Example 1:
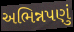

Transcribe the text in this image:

અભિન્નપણું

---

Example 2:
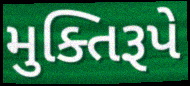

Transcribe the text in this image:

મુક્તિરૂપે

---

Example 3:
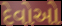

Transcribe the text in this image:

દેવોઓ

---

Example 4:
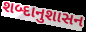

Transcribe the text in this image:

શબ્દાનુશાસન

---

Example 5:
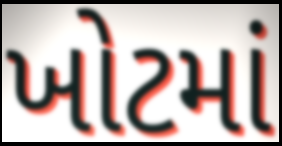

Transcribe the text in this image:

ખોટમાં